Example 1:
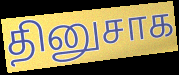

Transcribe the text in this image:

தினுசாக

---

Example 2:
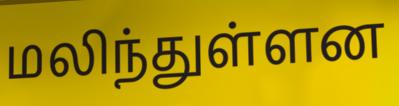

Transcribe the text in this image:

மலிந்துள்ளன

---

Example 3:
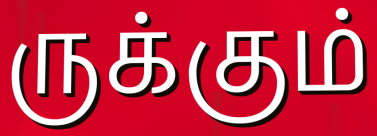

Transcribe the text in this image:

ருக்கும்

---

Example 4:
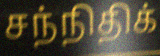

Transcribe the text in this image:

சந்நிதிக்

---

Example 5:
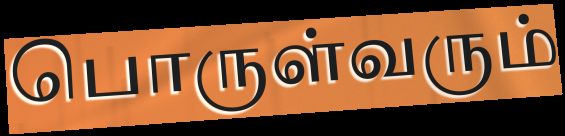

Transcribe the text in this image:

பொருள்வரும்